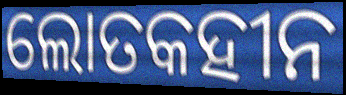
ଲୋତକହୀନ